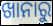
ଖାନାରୁ